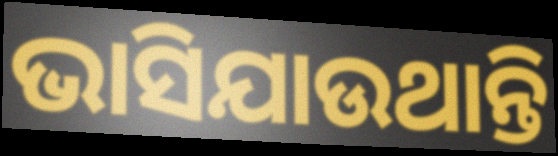
ଭାସିଯାଉଥାନ୍ତି